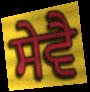
ਸੇਵੈ